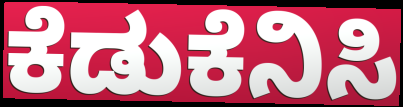
ಕೆಡುಕೆನಿಸಿ